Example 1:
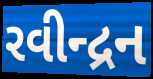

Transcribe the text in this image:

રવીન્દ્રન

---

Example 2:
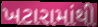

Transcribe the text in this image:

ખટારામાંથી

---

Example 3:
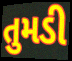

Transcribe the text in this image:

તુમડી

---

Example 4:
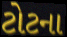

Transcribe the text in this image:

ટોટના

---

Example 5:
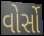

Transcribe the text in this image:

વોર્સો